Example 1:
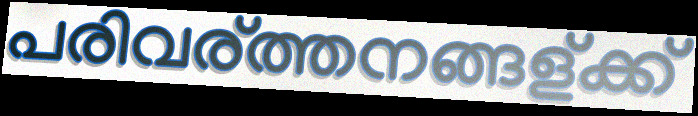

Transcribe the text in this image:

പരിവര്ത്തനങ്ങള്ക്ക്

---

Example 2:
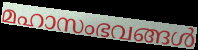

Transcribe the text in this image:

മഹാസംഭവങ്ങൾ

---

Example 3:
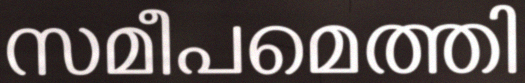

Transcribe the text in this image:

സമീപമെത്തി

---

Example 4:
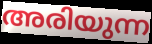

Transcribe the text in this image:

അരിയുന്ന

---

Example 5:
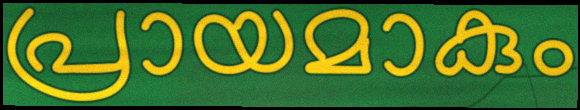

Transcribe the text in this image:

പ്രായമാകും